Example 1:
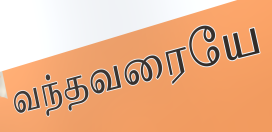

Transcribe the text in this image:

வந்தவரையே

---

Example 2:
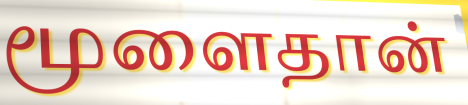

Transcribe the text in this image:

மூளைதான்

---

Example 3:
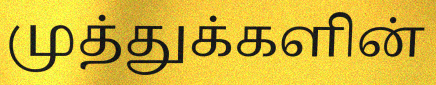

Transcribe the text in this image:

முத்துக்களின்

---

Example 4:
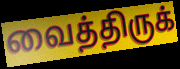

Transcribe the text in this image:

வைத்திருக்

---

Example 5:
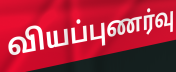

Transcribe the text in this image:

வியப்புணர்வு